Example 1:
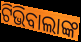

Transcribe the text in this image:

ଟିଭିବାଲାଙ୍କ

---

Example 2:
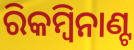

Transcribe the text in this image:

ରିକମ୍ବିନାଣ୍ଟ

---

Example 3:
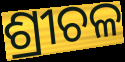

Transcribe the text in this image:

ଶ୍ରୀଚଳ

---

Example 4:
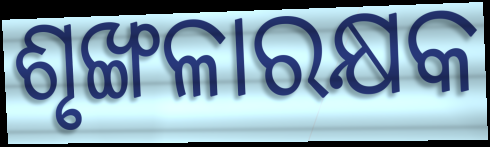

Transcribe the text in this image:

ଶୃଙ୍ଖଳାରକ୍ଷକ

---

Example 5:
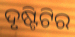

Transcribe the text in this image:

ଦୃଷ୍ଟିଟିର